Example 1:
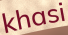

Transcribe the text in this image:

khasi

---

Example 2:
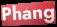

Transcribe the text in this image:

Phang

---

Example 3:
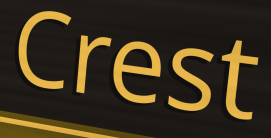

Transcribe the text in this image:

Crest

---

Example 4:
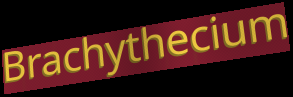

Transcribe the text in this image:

Brachythecium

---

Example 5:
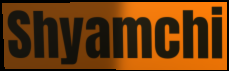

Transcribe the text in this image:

Shyamchi